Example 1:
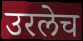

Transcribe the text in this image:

उरलेच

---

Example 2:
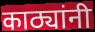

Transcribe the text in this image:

काठ्यांनी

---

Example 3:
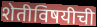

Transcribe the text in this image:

शेतीविषयीची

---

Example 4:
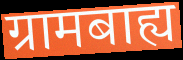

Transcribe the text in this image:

ग्रामबाह्य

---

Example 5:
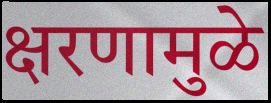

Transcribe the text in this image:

क्षरणामुळे